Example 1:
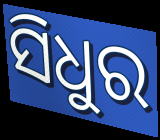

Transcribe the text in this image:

ସିଧୁର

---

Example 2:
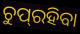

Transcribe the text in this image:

ଚୁପ୍‌ରହିବା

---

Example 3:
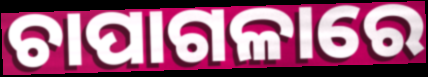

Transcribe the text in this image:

ଚାପାଗଳାରେ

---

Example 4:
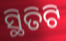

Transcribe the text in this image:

ସ୍ଥିତିଟି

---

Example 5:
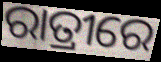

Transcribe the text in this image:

ରାତ୍ରୀରେ